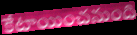
కేటాయించనుంది